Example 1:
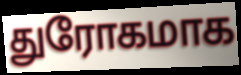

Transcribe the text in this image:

துரோகமாக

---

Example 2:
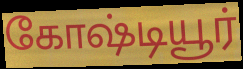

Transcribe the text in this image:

கோஷ்டியூர்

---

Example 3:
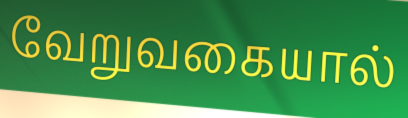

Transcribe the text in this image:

வேறுவகையால்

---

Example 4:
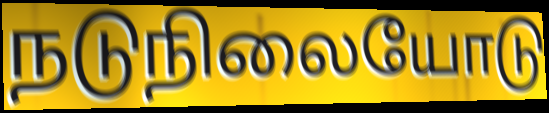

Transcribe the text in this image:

நடுநிலையோடு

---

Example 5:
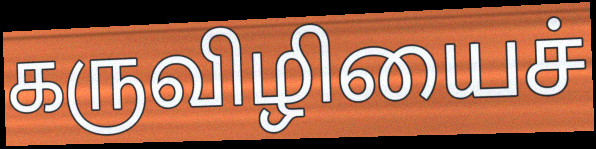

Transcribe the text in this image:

கருவிழியைச்